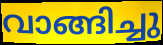
വാങ്ങിച്ചു